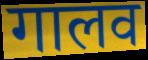
गालव